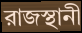
রাজস্থানী